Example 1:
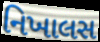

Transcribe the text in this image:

નિખાલસ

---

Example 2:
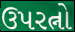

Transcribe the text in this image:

ઉપરત્નો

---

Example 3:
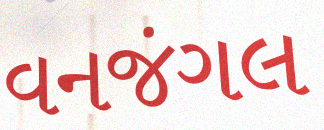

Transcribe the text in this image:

વનજંગલ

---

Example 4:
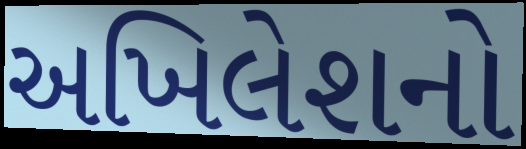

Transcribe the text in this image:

અખિલેશનો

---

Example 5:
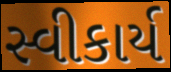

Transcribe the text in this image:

સ્વીકાર્ય